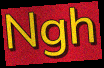
Ngh